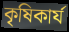
কৃষিকাৰ্য